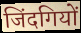
जिंदगियों